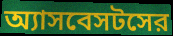
অ্যাসবেসটসের